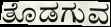
ತೊಡಗುವ